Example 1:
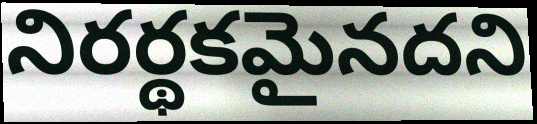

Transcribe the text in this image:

నిరర్థకమైనదని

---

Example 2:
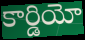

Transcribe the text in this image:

కార్డియో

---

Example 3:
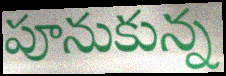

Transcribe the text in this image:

పూనుకున్న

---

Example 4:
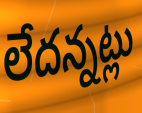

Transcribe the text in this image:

లేదన్నట్లు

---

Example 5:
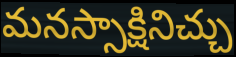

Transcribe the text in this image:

మనస్సాక్షినిచ్చు